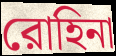
রোহিনা